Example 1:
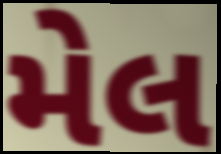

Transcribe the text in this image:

મેલ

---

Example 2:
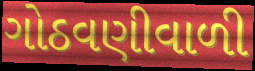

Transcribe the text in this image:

ગોઠવણીવાળી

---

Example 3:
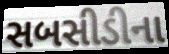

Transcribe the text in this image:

સબસીડીના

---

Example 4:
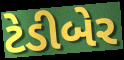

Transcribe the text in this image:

ટેડીબેર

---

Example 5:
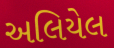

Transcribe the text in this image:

અલિયેલ